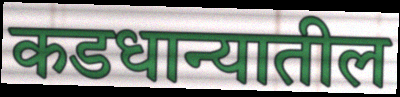
कडधान्यातील